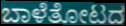
ಬಾಳೆತೋಟದ